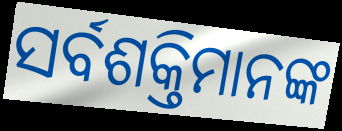
ସର୍ବଶକ୍ତିମାନଙ୍କ